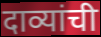
दाव्यांची